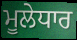
ਮੂਲੇਧਾਰ